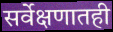
सर्वेक्षणातही